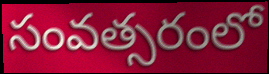
సంవత్సరంలో